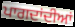
ਪਾਗਦਾਂਦੀਆਂ